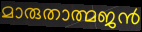
മാരുതാത്മജൻ